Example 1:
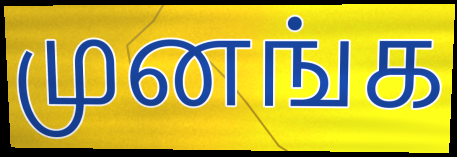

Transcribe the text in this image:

முனங்க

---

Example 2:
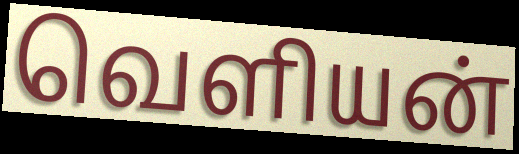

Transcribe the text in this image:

வெளியன்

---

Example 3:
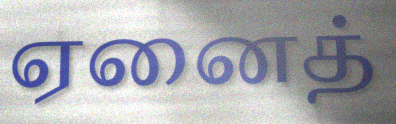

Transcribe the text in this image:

ஏனைத்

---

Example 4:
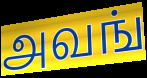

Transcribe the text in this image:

அவங்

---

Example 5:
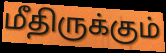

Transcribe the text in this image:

மீதிருக்கும்